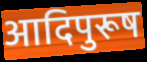
आदिपुरूष